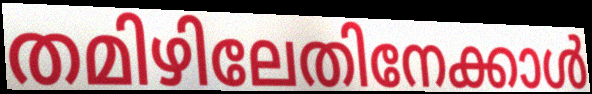
തമിഴിലേതിനേക്കാൾ